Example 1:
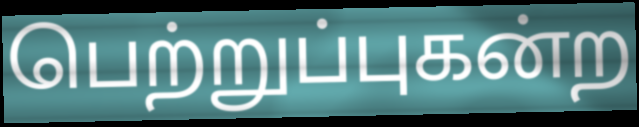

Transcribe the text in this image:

பெற்றுப்புகன்ற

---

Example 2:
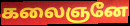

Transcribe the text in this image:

கலைஞனே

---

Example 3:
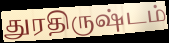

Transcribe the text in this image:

துரதிருஷ்டம்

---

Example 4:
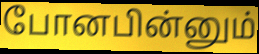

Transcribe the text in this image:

போனபின்னும்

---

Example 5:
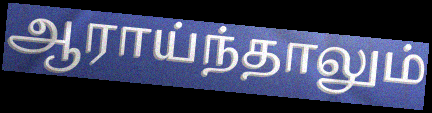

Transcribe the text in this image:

ஆராய்ந்தாலும்